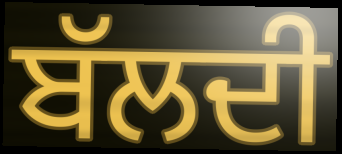
ਬੱਲਦੀ